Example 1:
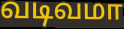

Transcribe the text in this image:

வடிவமா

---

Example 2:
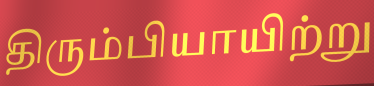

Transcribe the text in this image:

திரும்பியாயிற்று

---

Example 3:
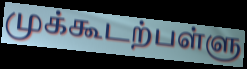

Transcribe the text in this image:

முக்கூடற்பள்ளு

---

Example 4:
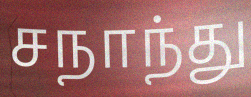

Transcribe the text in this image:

சநாந்து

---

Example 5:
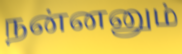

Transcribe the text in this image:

நன்னனும்